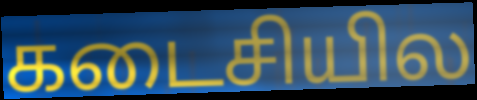
கடைசியில